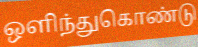
ஒளிந்துகொண்டு